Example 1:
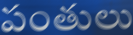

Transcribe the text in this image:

పంతులు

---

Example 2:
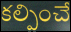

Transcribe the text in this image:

కల్పించే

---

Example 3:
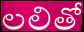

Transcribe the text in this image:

లలితో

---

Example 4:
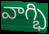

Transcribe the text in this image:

వాగ్భి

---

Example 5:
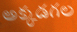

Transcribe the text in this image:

అక్కడగల